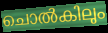
ചൊൽകിലും